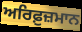
ਅਰਿਫ਼ੁਜ਼ਮਾਨ